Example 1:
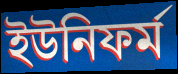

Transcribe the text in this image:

ইউনিফৰ্ম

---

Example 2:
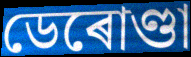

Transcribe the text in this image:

ডেৰোণ্ডা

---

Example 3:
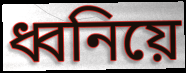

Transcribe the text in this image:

ধ্বনিয়ে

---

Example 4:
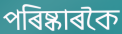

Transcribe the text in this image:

পৰিষ্কাৰকৈ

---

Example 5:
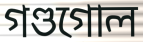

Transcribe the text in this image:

গণ্ডগোল